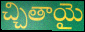
చ్చితాయై